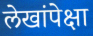
लेखांपेक्षा